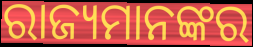
ରାଜ୍ୟମାନଙ୍କର